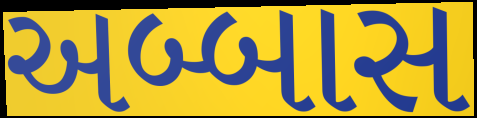
અબ્બાસ